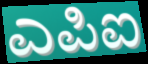
ಎಪಿಐ